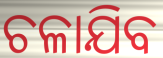
ଚଳାଯିବ